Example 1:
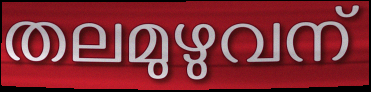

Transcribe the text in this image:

തലമുഴുവന്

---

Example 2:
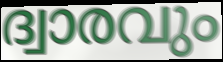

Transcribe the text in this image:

ദ്വാരവും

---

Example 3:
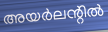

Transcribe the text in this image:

അയർലന്റിൽ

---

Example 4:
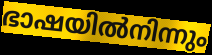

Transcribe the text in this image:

ഭാഷയിൽനിന്നും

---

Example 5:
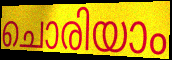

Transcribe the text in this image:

ചൊരിയാം